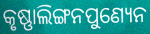
କୃଷ୍ଣାଲିଙ୍ଗନପୁଣ୍ଯେନ